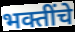
भक्तींचे